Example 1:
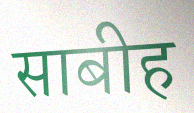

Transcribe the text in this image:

साबीह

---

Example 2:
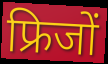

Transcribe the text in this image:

फ्रिजों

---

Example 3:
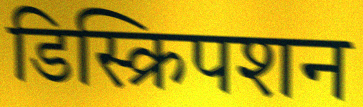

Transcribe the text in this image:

डिस्क्रिपशन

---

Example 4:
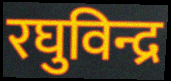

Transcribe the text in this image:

रघुविन्द्र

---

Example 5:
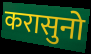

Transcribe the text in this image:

करासुनो